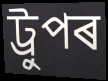
ট্ৰুপৰ